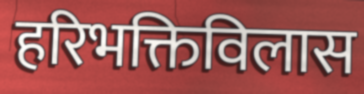
हरिभक्तिविलास